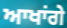
ਆਖਾਂਗੇ